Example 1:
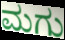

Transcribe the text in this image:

ಮಗು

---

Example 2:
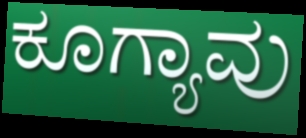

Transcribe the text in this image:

ಕೂಗ್ಯಾವು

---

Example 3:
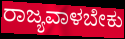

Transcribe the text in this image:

ರಾಜ್ಯವಾಳಬೇಕು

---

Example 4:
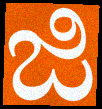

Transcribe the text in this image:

ಜಿ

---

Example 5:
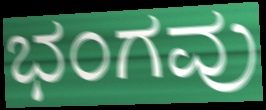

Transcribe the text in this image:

ಭಂಗವು